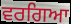
ਵਰਗਿਆ